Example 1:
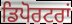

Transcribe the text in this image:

ਡਿਪੋਰਟਰਾਂ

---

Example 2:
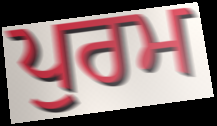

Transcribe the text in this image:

ਪੁਰਮ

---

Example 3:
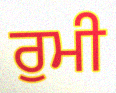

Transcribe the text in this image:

ਰੁਮੀ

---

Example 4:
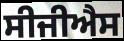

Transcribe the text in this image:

ਸੀਜੀਐਸ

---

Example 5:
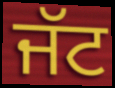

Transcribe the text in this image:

ਜੱਟ